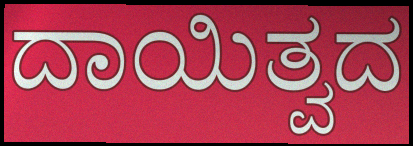
ದಾಯಿತ್ವದ